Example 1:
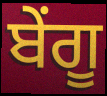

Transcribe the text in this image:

ਬੇਂਗੂ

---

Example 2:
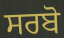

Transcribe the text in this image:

ਸਰਬੋ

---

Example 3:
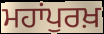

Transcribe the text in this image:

ਮਹਾਂਪੁਰਖ਼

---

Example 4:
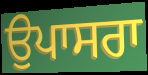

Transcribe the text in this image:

ਉਪਾਸਰਾ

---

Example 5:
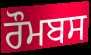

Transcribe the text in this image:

ਰੌਮਬਸ